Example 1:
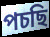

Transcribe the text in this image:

পচছি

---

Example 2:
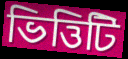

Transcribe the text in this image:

ভিত্তিটি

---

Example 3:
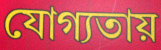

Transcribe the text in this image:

যোগ্যতায়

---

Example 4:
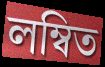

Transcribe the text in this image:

লম্বিত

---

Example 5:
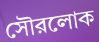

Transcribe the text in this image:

সৌরলোক